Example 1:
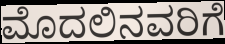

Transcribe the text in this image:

ಮೊದಲಿನವರಿಗೆ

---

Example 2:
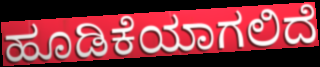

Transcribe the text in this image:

ಹೂಡಿಕೆಯಾಗಲಿದೆ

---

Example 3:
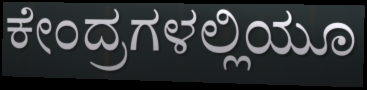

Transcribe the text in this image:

ಕೇಂದ್ರಗಳಲ್ಲಿಯೂ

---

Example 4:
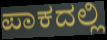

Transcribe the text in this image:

ಪಾಕದಲ್ಲಿ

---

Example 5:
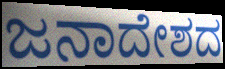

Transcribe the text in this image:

ಜನಾದೇಶದ